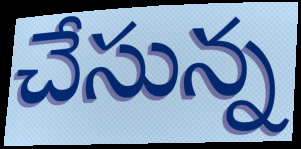
చేసున్న